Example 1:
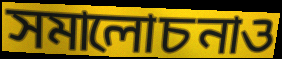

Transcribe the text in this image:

সমালোচনাও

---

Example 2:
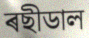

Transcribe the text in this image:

ৰছীডাল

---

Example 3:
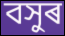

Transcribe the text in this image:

বসুৰ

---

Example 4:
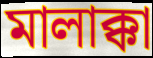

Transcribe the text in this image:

মালাক্কা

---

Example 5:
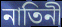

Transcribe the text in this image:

নাতিনী